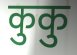
कुकु